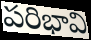
పరిభావి